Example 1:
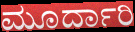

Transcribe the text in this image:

ಮೂರ್ದಾರಿ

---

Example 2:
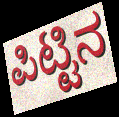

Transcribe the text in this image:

ಪಿಟ್ಟಿನ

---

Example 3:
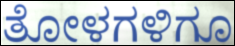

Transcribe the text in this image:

ತೋಳಗಳಿಗೂ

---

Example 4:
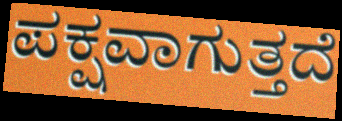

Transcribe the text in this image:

ಪಕ್ಷವಾಗುತ್ತದೆ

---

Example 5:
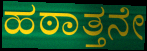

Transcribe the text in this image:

ಹಠಾತ್ತನೇ